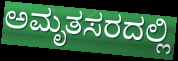
ಅಮೃತಸರದಲ್ಲಿ